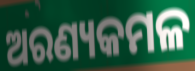
ଅରଣ୍ୟକମଳ